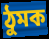
ঠুমক